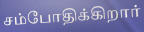
சம்போதிக்கிறார்